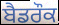
ਬੈਡਰੌਕ